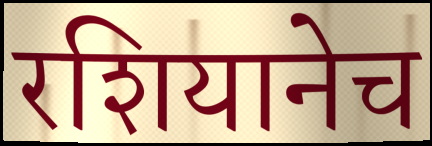
रशियानेच